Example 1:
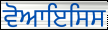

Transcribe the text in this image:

ਵੋਆਇਸਿਸ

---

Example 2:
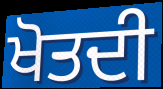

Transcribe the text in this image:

ਖੋਤਦੀ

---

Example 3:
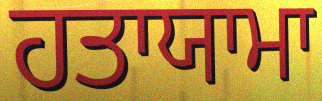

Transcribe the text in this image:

ਹਤਾਯਾਮਾ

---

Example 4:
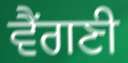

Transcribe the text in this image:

ਵੈਂਗਣੀ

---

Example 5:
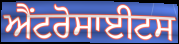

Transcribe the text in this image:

ਐਂਟਰੋਸਾਈਟਸ